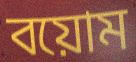
বয়োম